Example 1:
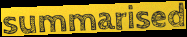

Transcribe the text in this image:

summarised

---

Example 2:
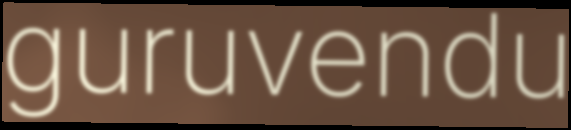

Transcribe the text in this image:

guruvendu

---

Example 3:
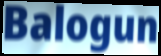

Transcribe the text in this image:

Balogun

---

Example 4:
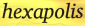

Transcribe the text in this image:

hexapolis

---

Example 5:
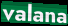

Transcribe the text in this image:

valana